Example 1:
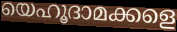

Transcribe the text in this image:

യെഹൂദാമക്കളെ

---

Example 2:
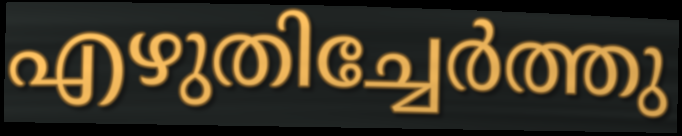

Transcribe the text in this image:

എഴുതിച്ചേർത്തു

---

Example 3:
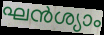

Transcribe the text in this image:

ഘൻശ്യാം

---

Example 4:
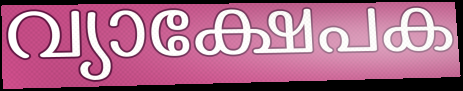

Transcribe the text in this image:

വ്യാക്ഷേപക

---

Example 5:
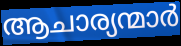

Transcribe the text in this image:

ആചാര്യന്മാർ